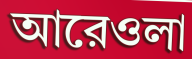
আরেওলা